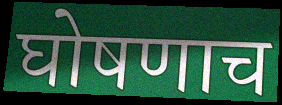
घोषणाच